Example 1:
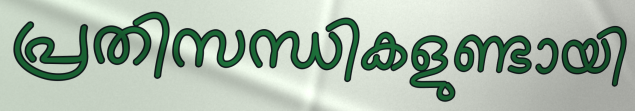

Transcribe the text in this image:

പ്രതിസന്ധികളുണ്ടായി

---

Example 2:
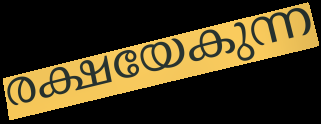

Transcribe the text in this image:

രക്ഷയേകുന്ന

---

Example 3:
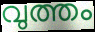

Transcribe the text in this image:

വുത്തം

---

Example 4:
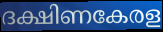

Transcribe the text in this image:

ദക്ഷിണകേരള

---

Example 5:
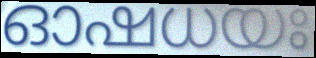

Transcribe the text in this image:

ഓഷധയഃ